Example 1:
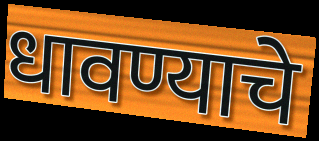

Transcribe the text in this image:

धावण्याचे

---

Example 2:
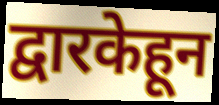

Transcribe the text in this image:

द्वारकेहून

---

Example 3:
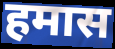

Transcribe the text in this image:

हमास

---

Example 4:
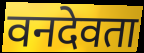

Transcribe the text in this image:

वनदेवता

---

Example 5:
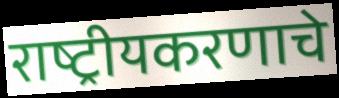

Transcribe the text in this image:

राष्ट्रीयकरणाचे